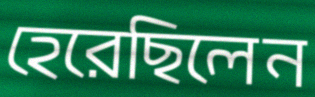
হেরেছিলেন